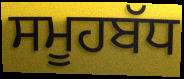
ਸਮੂਹਬੱਧ